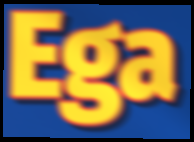
Ega